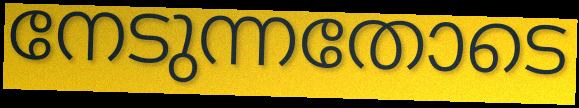
നേടുന്നതോടെ